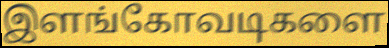
இளங்கோவடிகளை